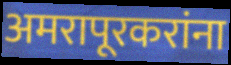
अमरापूरकरांना